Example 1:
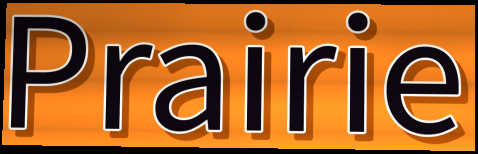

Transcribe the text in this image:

Prairie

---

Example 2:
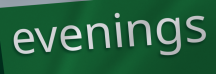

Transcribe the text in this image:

evenings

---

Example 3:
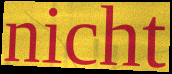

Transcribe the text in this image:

nicht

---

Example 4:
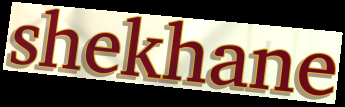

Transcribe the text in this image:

shekhane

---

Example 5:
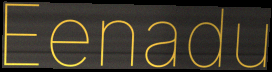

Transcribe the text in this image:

Eenadu